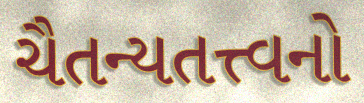
ચૈતન્યતત્ત્વનો